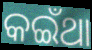
କଇଁଥା